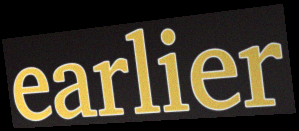
earlier